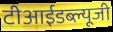
टीआईडब्ल्यूजी